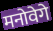
मनोवेगे